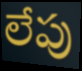
లేపు